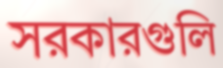
সরকারগুলি